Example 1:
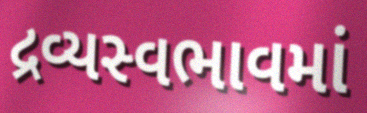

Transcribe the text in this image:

દ્રવ્યસ્વભાવમાં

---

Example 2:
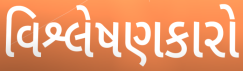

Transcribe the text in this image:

વિશ્લેષણકારો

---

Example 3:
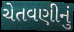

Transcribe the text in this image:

ચેતવણીનું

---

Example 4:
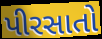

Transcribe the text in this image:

પીરસાતો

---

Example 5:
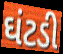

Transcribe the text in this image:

ઘંટડી